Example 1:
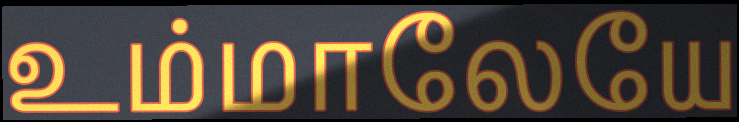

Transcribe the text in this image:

உம்மாலேயே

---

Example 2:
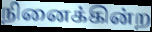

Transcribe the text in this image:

நினைக்கின்ற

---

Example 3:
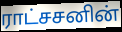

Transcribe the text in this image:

ராட்சசனின்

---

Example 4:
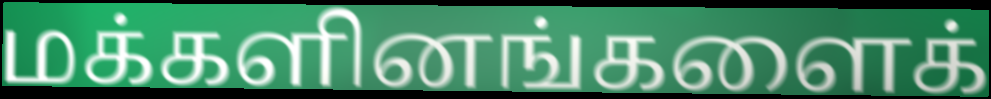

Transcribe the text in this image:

மக்களினங்களைக்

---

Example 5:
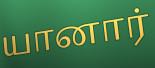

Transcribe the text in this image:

யானார்